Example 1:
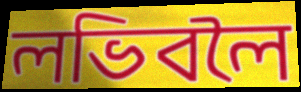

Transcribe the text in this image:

লভিবলৈ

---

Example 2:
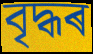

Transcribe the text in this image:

বৃদ্ধৰ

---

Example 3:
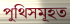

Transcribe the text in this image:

পুথিসমূহত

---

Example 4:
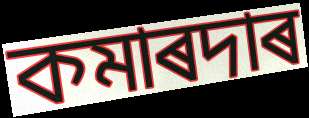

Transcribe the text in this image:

কমাৰদাৰ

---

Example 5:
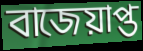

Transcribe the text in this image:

বাজেয়াপ্ত